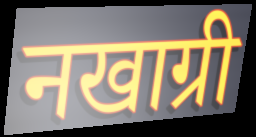
नखाग्री